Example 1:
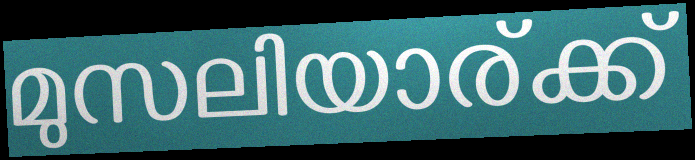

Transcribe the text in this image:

മുസലിയാര്ക്ക്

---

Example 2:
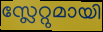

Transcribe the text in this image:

സ്ലേറ്റുമായി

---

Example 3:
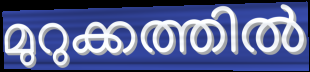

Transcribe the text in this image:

മുറുക്കത്തിൽ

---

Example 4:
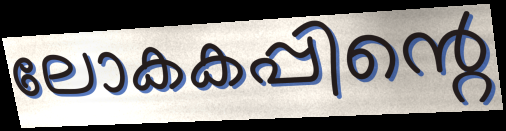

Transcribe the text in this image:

ലോകകപ്പിന്റെ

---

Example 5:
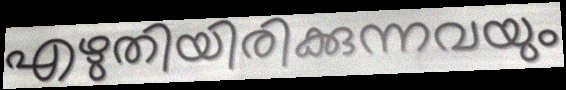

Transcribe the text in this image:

എഴുതിയിരിക്കുന്നവയും